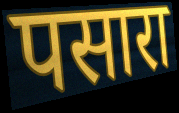
पसारा